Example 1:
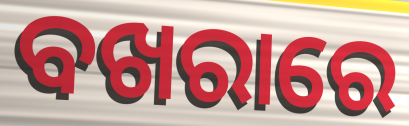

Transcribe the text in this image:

ବଖରାରେ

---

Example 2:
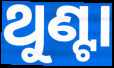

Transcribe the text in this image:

ଥୁଣ୍ଟା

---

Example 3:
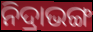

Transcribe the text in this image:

ନିଦ୍ରାଭଙ୍ଗ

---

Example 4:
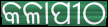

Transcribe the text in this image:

କଳାପୀଠ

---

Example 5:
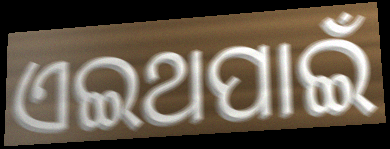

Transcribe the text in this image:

ଏଇଥପାଇଁ